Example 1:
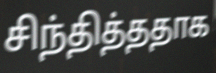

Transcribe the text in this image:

சிந்தித்ததாக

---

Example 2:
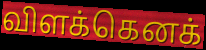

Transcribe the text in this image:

விளக்கெனக்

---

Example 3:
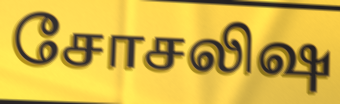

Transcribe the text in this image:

சோசலிஷ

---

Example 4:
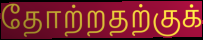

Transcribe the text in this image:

தோற்றதற்குக்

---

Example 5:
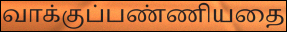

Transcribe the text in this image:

வாக்குப்பண்ணியதை